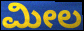
ಮೀಲ